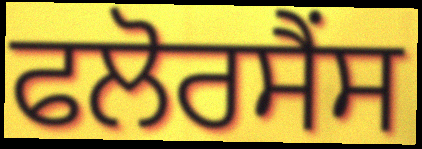
ਫਲੋਰਸੈਂਸ